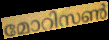
മോറിസൺ